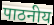
पाठनीय